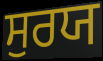
ਸੁਰਯ